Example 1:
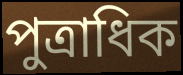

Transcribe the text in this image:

পুত্রাধিক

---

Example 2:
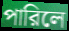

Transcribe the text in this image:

পারিলে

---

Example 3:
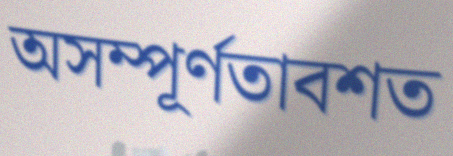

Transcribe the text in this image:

অসম্পূর্ণতাবশত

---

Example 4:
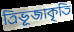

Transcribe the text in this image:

ত্রিভূজাকৃতি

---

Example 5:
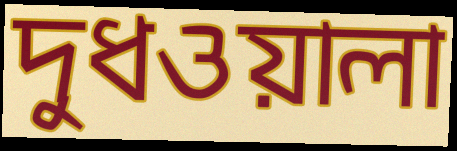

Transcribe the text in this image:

দুধওয়ালা